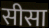
सीसा